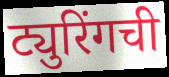
ट्युरिंगची